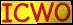
ICWO